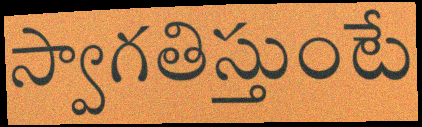
స్వాగతిస్తుంటే